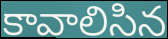
కావాలిసిన